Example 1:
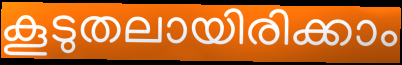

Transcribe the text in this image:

കൂടുതലായിരിക്കാം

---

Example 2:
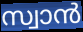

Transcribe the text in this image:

സ്വാൻ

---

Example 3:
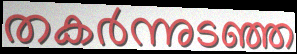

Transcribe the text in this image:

തകർന്നുടഞ്ഞ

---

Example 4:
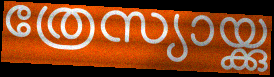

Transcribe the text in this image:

ത്രേസ്യായ്ക്കു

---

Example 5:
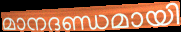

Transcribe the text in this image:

മാനദണ്ഡമായി